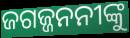
ଜଗଜ୍ଜନନୀଙ୍କୁ